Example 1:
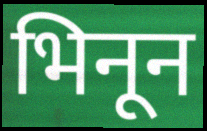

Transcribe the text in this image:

भिनून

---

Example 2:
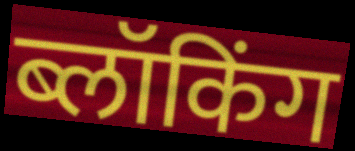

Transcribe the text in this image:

ब्लॉकिंग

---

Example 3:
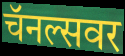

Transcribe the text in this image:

चॅनल्सवर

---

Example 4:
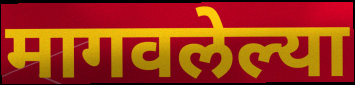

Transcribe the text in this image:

मागवलेल्या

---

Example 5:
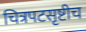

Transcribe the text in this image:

चित्रपटसृष्टीच